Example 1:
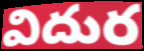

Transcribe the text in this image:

విదుర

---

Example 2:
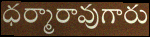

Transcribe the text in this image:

ధర్మారావుగారు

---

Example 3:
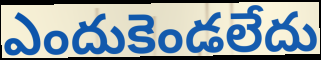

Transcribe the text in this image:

ఎందుకెండలేదు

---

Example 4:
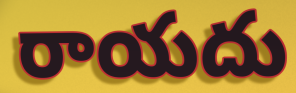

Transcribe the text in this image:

రాయదు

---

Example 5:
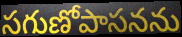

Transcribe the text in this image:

సగుణోపాసనను